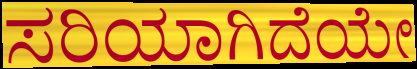
ಸರಿಯಾಗಿದೆಯೇ